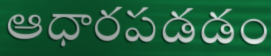
ఆధారపడడం